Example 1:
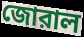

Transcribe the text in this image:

জোরাল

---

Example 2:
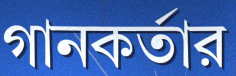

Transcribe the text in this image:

গানকর্তার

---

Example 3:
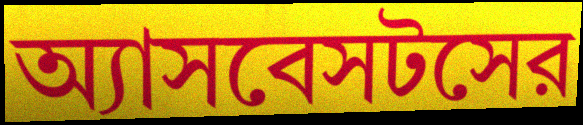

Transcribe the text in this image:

অ্যাসবেসটসের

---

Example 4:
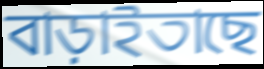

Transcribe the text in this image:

বাড়াইতাছে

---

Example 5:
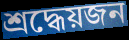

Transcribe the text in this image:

শ্রদ্ধেয়জন